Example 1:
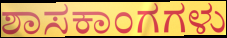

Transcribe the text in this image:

ಶಾಸಕಾಂಗಗಳು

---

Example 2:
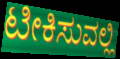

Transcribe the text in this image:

ಟೀಕಿಸುವಲ್ಲಿ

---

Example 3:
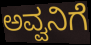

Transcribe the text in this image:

ಅವ್ವನಿಗೆ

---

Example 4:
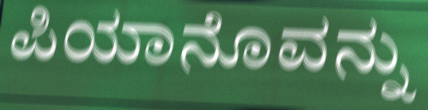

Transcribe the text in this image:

ಪಿಯಾನೊವನ್ನು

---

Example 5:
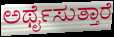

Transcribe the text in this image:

ಅರ್ಥೈಸುತ್ತಾರೆ